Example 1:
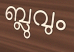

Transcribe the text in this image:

ബ്ലുവും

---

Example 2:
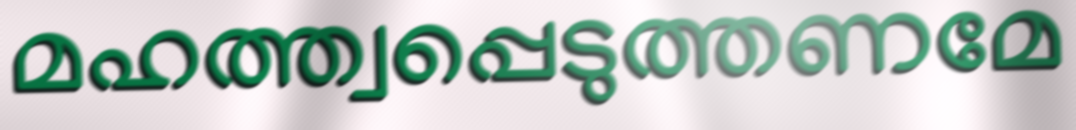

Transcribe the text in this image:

മഹത്ത്വപ്പെടുത്തണമേ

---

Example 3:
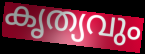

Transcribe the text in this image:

കൃത്യവും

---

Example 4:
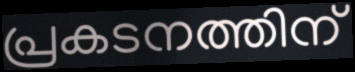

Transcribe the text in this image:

പ്രകടനത്തിന്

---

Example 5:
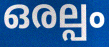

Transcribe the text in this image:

ഒരല്പം